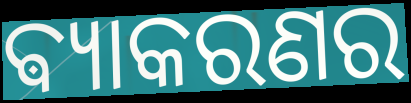
ଵ୍ୟାକରଣର